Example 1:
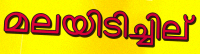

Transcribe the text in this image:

മലയിടിച്ചില്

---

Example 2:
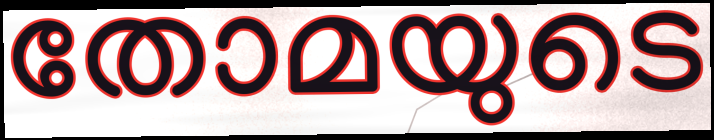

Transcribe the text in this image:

തോമയുടെ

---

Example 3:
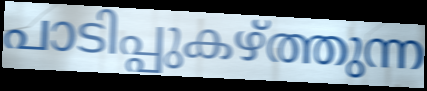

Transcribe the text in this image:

പാടിപ്പുകഴ്ത്തുന്ന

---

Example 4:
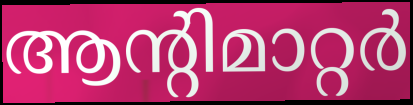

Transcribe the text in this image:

ആന്റിമാറ്റർ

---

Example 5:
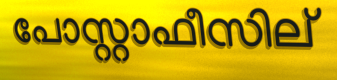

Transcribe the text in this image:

പോസ്റ്റാഫീസില്